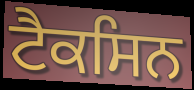
ਟੈਕਸਿਨ